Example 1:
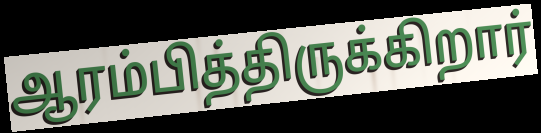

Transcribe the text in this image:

ஆரம்பித்திருக்கிறார்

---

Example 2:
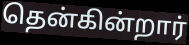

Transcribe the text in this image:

தென்கின்றார்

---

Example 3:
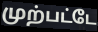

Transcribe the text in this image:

முற்பட்டே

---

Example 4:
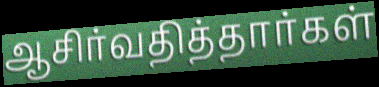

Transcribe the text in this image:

ஆசிர்வதித்தார்கள்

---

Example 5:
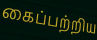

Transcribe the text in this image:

கைப்பற்றிய